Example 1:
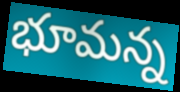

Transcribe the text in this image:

భూమన్న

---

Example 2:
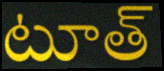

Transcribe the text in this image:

టూత్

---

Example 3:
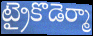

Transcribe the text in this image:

ట్రైకొడెర్మా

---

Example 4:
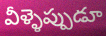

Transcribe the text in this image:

వీళ్ళెప్పుడూ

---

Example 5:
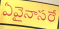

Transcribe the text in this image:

ఏవైనాసరే